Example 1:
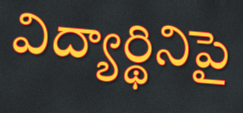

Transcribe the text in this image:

విద్యార్థినిపై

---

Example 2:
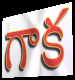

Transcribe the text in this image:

గాక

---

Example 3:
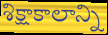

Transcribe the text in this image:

శిక్షాకాలాన్ని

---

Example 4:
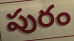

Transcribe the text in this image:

పురం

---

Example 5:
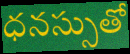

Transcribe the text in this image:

ధనస్సుతో